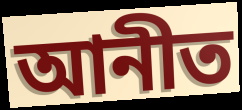
আনীত